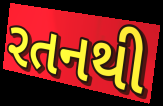
રતનથી